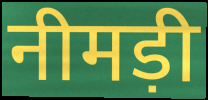
नीमड़ी